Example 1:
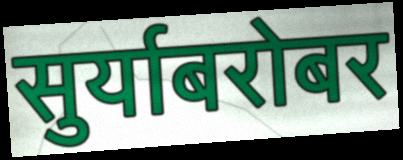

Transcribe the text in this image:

सुर्याबरोबर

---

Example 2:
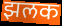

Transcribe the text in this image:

झलक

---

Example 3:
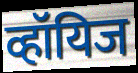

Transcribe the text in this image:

व्हॉयिज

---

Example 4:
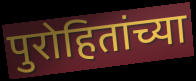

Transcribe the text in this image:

पुरोहितांच्या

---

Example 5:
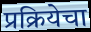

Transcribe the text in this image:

प्रक्रियेचा